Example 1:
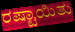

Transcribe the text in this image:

ರಷ್ಟಾಯಿತು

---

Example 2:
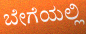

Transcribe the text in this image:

ಬೇಗೆಯಲ್ಲಿ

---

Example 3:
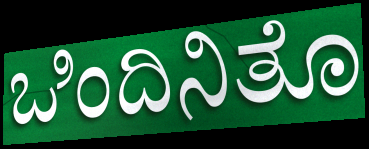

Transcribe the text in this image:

ಒಿಂದಿನಿತೊ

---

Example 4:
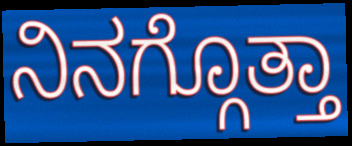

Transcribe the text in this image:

ನಿನಗ್ಗೊತ್ತಾ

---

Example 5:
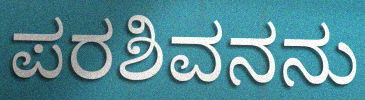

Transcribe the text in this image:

ಪರಶಿವನನು